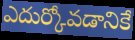
ఎదుర్కోవడానికే